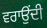
ਵਰਾਉਂਦੀ